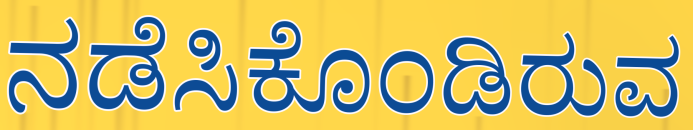
ನಡೆಸಿಕೊಂಡಿರುವ